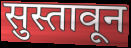
सुस्तावून